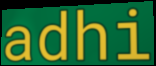
adhi